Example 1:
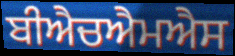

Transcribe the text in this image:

ਬੀਐਚਐਮਐਸ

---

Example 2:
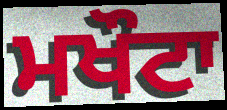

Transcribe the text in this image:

ਮਖੌਟਾ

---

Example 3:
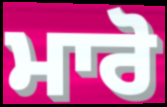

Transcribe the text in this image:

ਮਾਰੋ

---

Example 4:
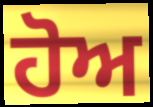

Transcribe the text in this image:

ਹੋਅ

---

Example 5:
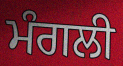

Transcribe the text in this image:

ਮੰਗਲੀ